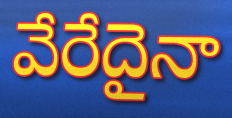
వేరేదైనా